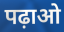
पढ़ाओ